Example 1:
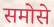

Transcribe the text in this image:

समोसे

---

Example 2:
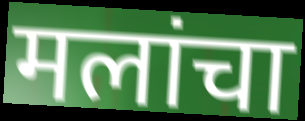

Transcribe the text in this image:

मलांचा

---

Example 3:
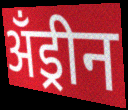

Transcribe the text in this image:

अँड्रीन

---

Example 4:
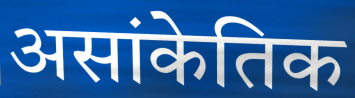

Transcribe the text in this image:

असांकेतिक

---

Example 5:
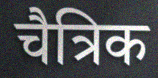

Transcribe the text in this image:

चैत्रिक